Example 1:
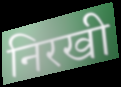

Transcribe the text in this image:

निरखी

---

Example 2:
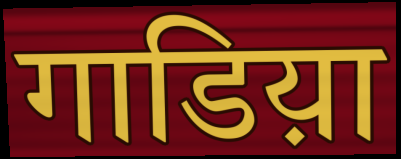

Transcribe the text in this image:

गाडिय़ा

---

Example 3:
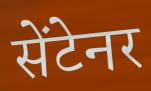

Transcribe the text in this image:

सेंटेनर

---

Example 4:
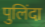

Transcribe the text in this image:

पुलिंदा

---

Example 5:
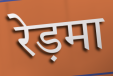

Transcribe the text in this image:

रेड़मा